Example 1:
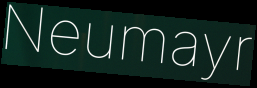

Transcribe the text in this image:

Neumayr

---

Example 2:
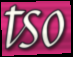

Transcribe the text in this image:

tso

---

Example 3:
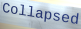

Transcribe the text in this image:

Collapsed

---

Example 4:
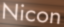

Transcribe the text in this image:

Nicon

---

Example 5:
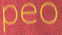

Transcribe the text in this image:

peo